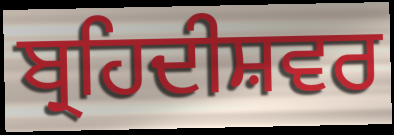
ਬ੍ਰਹਿਦੀਸ਼ਵਰ